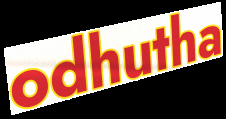
odhutha